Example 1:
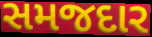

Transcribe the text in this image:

સમજદાર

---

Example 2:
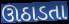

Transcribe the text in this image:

ઊઠાડતા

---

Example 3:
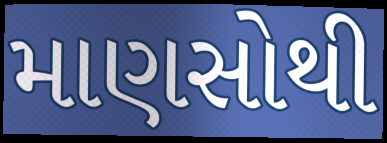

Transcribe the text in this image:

માણસોથી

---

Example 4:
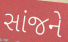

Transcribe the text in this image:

સાંજને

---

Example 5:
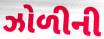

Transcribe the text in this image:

ઝોળીની